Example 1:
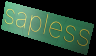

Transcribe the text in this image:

sapless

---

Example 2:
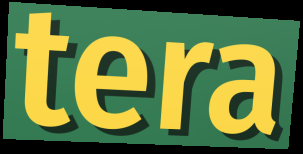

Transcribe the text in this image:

tera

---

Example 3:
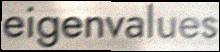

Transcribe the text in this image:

eigenvalues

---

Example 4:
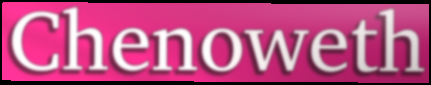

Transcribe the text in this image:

Chenoweth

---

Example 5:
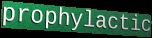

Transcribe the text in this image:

prophylactic